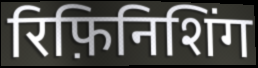
रिफ़िनिशिंग